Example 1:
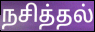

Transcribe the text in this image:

நசித்தல்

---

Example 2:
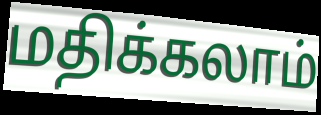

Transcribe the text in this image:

மதிக்கலாம்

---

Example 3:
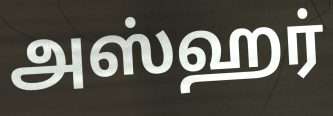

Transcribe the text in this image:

அஸ்ஹர்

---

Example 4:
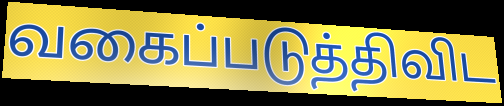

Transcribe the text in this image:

வகைப்படுத்திவிட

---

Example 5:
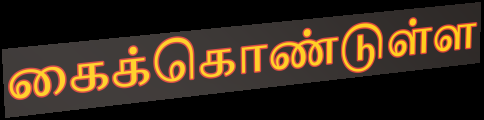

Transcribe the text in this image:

கைக்கொண்டுள்ள